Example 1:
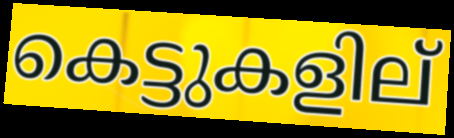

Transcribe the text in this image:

കെട്ടുകളില്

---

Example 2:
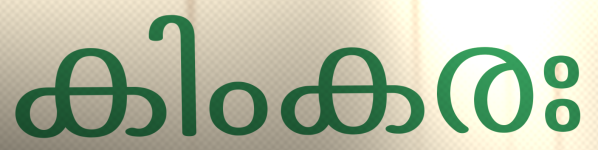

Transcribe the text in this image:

കിംകരഃ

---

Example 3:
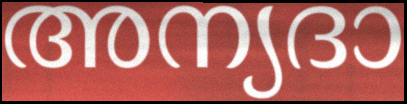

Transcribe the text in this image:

അന്യദാ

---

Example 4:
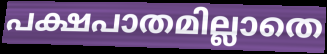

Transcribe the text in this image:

പക്ഷപാതമില്ലാതെ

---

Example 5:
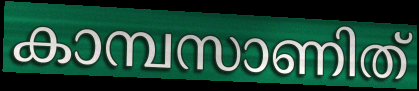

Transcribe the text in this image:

കാമ്പസാണിത്